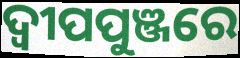
ଦ୍ବୀପପୁଞ୍ଜରେ